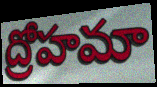
ద్రోహమా